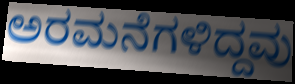
ಅರಮನೆಗಳಿದ್ದವು